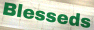
Blesseds